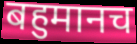
बहुमानच